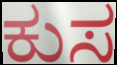
ಕುಸ